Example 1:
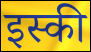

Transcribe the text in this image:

इस्की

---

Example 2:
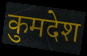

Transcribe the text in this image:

कुमदेश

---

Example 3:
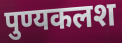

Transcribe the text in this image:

पुण्यकलश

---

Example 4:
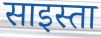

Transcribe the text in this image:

साइस्ता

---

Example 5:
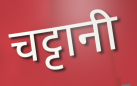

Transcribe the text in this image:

चट्टानी